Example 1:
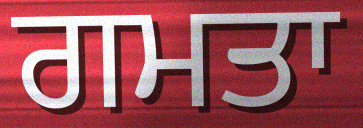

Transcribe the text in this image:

ਗਮਤਾ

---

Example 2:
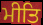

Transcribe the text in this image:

ਮੀਤਿ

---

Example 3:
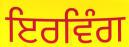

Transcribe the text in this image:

ਇਰਵਿੰਗ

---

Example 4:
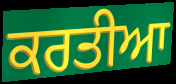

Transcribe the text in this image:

ਕਰਤੀਆ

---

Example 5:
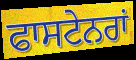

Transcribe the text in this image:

ਫਾਸਟੇਨਰਾਂ